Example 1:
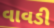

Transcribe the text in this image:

વાવડી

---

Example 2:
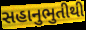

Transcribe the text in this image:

સહાનુભુતીથી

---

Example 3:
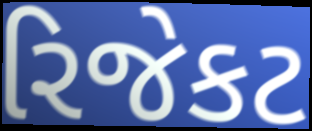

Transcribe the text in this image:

રિજેકટ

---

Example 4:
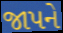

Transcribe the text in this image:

જાપને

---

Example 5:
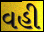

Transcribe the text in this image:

વહી